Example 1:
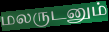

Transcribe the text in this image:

மலருடனும்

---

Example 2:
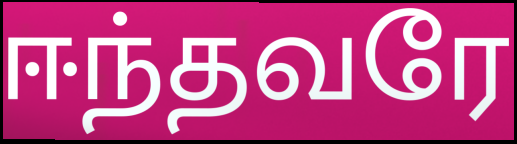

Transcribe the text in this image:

ஈந்தவரே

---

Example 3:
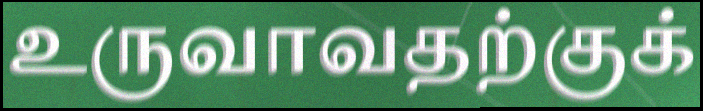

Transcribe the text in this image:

உருவாவதற்குக்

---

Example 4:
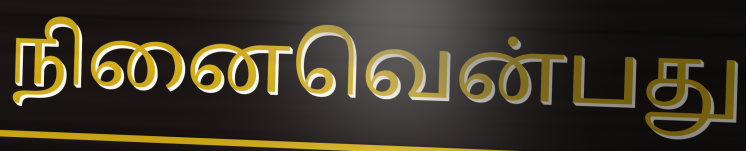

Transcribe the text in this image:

நினைவென்பது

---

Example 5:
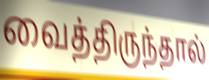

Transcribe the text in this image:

வைத்திருந்தால்